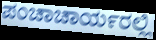
ಪಂಚಾಚಾರ್ಯರಲ್ಲಿ